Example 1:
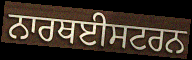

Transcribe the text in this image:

ਨਾਰਥਈਸਟਰਨ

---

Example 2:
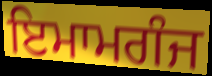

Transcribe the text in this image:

ਇਮਾਮਗੰਜ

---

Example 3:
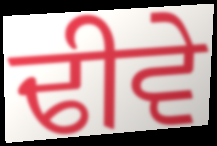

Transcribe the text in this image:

ਢੀਵੇ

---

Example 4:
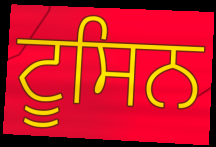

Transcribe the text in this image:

ਟੂਸਿਨ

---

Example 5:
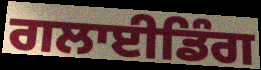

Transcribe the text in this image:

ਗਲਾਈਡਿੰਗ